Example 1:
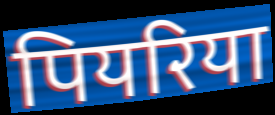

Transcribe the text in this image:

पियरिया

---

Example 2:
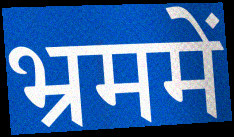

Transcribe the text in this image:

भ्रममें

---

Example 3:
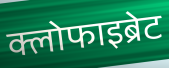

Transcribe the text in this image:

क्लोफाइब्रेट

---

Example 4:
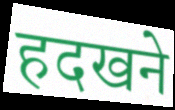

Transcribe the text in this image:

हदखने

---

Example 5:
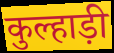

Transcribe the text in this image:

कुल्हाड़ी